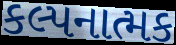
કલ્પનાત્મક